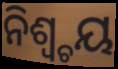
ନିଶ୍ୱ୍ଚୟ